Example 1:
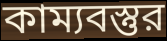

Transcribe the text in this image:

কাম্যবস্তুর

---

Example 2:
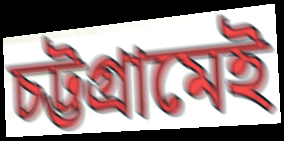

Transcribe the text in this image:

চট্টগ্রামেই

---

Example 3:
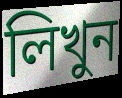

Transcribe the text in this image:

লিখুন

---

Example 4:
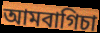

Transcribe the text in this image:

আমবাগিচা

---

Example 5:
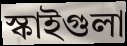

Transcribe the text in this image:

স্কাইগুলা